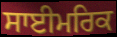
ਸਾਈਮਰਿਕ